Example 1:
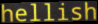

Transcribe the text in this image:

hellish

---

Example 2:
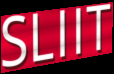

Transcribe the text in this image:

SLIIT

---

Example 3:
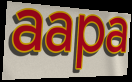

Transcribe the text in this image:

aapa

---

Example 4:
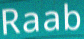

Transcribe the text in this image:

Raab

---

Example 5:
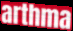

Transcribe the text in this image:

arthma